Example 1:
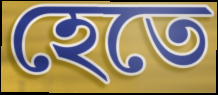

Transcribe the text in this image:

হেতে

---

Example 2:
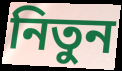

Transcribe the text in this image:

নিতুন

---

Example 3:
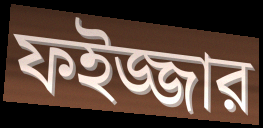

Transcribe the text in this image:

ফইজ্জার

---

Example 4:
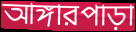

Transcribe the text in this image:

আঙ্গারপাড়া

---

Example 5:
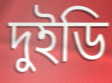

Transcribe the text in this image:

দুইডি